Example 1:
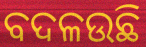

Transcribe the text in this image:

ବଦଳଉଛି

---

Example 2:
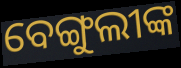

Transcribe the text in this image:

ବେଙ୍ଗୁଲୀଙ୍କ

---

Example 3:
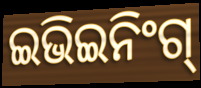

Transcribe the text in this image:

ଇଭିଇନିଂଗ୍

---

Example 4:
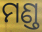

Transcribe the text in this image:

ମଣ୍ଡ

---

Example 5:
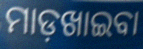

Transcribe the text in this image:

ମାଡ଼ଖାଇବା